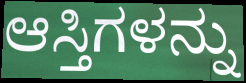
ಆಸ್ತಿಗಳನ್ನು